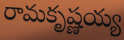
రామకృష్ణయ్య